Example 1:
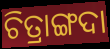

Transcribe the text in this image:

ଚିତ୍ରାଙ୍ଗଦା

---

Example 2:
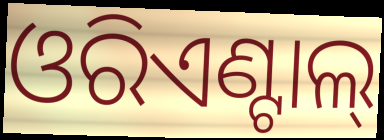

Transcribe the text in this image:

ଓରିଏଣ୍ଟାଲ୍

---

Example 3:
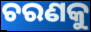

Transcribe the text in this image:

ଚରଣକୁ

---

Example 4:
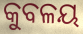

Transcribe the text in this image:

କୁବଳୟ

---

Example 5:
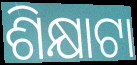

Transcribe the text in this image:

ଶିକ୍ଷାଟା